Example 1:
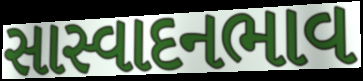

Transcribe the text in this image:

સાસ્વાદનભાવ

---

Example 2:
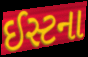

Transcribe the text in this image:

ઈસ્ટના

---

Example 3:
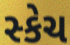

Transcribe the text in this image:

સ્કેચ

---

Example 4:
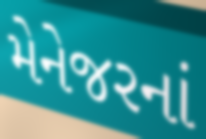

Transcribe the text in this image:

મેનેજરનાં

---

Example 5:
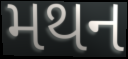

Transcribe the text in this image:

મથન